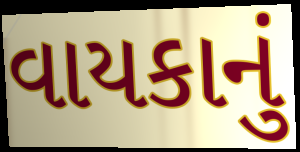
વાયકાનું